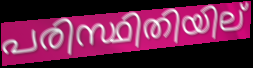
പരിസ്ഥിതിയില്